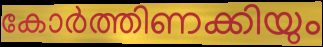
കോർത്തിണക്കിയും